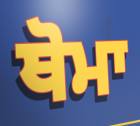
ਥੋਮਾ